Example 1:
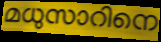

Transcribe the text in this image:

മധുസാറിനെ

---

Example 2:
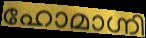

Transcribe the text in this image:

ഹോമാഗ്നി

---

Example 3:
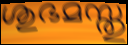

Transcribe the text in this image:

ശുഭമസ്തു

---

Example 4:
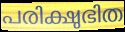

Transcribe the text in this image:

പരിക്ഷുഭിത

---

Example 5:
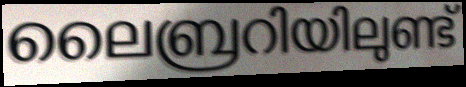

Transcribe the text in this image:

ലൈബ്രറിയിലുണ്ട്